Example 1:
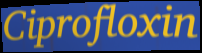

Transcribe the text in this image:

Ciprofloxin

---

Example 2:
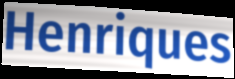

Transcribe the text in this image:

Henriques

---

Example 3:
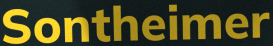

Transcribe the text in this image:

Sontheimer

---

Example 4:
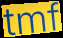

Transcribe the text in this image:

tmf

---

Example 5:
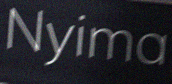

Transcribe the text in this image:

Nyima